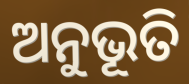
ଅନୁଭୂତି